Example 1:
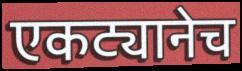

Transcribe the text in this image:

एकट्यानेच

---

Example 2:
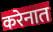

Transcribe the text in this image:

करेनात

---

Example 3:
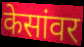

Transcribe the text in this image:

केसांवर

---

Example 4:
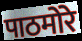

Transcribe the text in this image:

पाठमोरे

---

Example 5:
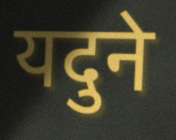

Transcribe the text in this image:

यदुने